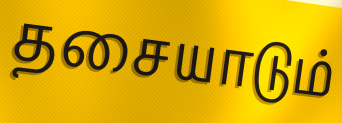
தசையாடும்